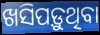
ଖସିପଡ଼ୁଥିବା